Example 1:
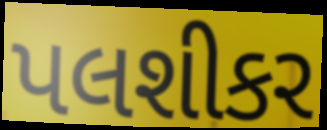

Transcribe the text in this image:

પલશીકર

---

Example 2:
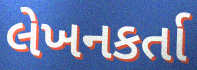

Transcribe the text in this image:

લેખનકર્તા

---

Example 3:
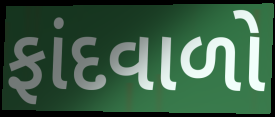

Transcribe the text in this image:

ફાંદવાળો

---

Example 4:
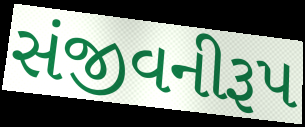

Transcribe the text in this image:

સંજીવનીરૂપ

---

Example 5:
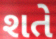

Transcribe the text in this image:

શતે